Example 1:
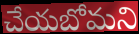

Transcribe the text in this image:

చేయబోమని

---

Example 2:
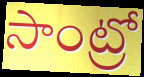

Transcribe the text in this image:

సాంట్రో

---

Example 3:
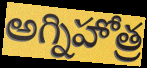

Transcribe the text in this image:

అగ్నిహోత్ర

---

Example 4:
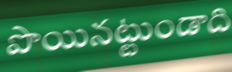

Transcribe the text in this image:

పొయినట్టుండాది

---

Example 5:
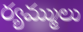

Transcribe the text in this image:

ర్యమ్ములు